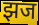
झज